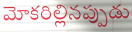
మోకరిల్లినప్పుడు